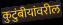
कुटुंबीयांवरील